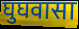
घुघवासा